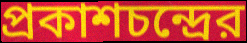
প্রকাশচন্দ্রের